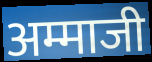
अम्माजी